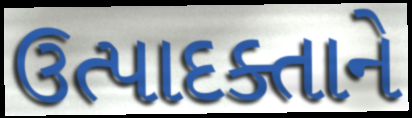
ઉત્પાદક્તાને